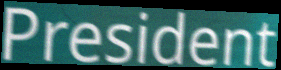
President